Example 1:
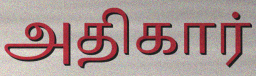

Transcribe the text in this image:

அதிகார்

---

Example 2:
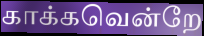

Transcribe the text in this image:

காக்கவென்றே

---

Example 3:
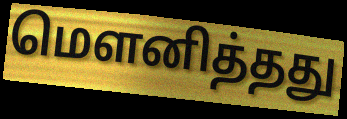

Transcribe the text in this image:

மௌனித்தது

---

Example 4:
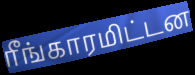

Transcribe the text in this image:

ரீங்காரமிட்டன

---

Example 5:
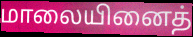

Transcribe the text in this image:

மாலையினைத்